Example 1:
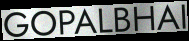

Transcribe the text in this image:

GOPALBHAI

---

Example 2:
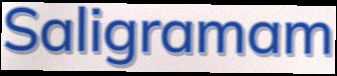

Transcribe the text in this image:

Saligramam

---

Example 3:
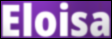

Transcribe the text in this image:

Eloisa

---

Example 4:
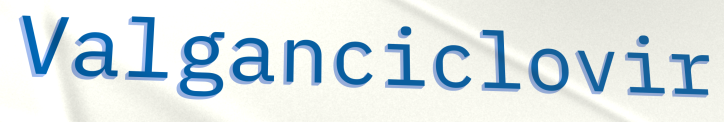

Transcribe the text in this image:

Valganciclovir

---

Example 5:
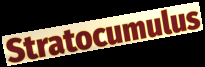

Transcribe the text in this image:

Stratocumulus